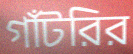
গাঁটরির